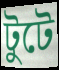
টুটে